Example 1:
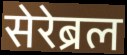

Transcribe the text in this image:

सेरेब्रल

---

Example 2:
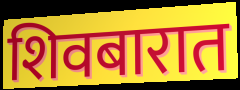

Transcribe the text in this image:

शिवबारात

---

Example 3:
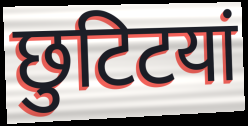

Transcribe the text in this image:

छुटिटयां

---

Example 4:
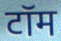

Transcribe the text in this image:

टॉम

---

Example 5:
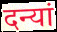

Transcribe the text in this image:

दन्यां